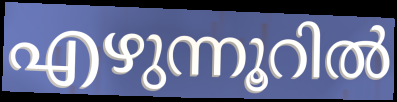
എഴുന്നൂറിൽ